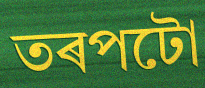
তৰপটো